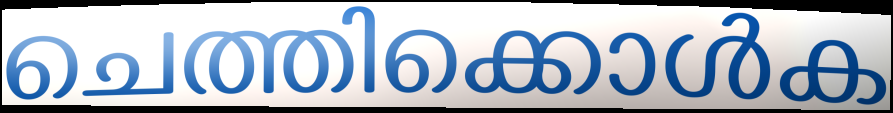
ചെത്തിക്കൊൾക